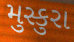
મુસ્કુરા